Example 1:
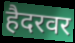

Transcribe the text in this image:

हैदरवर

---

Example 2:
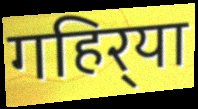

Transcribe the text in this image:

गहिर्‍या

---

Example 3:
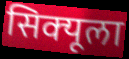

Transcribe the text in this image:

सिक्यूला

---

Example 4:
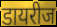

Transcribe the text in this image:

डायरीज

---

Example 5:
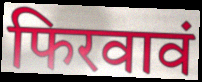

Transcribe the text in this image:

फिरवावं